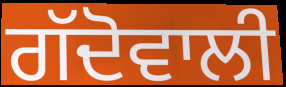
ਗੱਦੋਵਾਲੀ